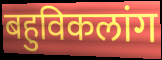
बहुविकलांग